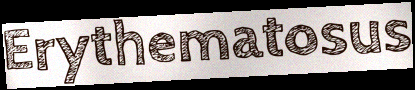
Erythematosus